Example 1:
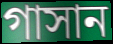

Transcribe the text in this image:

গাসান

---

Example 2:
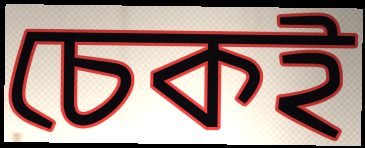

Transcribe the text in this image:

চেকই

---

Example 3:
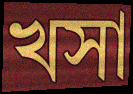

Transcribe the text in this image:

খসা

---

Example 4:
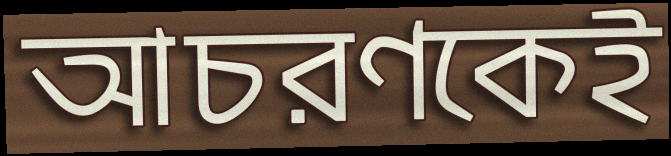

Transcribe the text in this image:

আচরণকেই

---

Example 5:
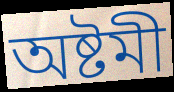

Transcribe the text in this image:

অষ্টমী